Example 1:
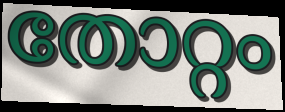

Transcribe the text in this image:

തോറ്റം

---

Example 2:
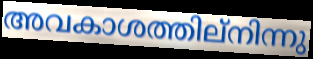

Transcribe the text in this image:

അവകാശത്തില്നിന്നു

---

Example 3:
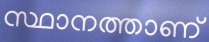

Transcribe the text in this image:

സ്ഥാനത്താണ്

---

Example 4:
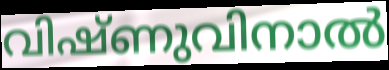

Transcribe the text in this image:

വിഷ്ണുവിനാൽ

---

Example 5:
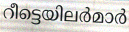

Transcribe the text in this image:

റീട്ടെയിലർമാർ